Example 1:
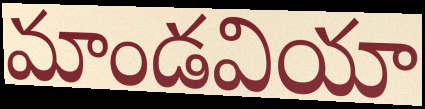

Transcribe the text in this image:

మాండవియా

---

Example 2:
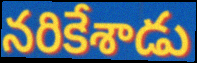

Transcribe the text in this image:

నరికేశాడు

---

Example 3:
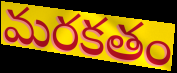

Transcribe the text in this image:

మరకతం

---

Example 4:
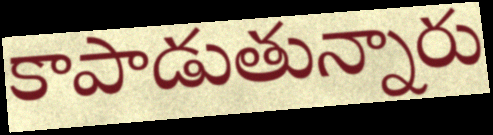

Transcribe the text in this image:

కాపాడుతున్నారు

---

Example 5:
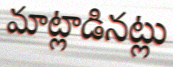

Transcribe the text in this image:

మాట్లాడినట్లు